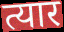
त्यार